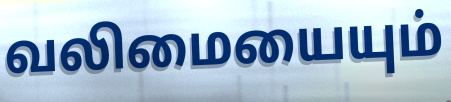
வலிமையையும்